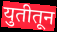
युतीतून